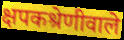
क्षपकश्रेणीवाले